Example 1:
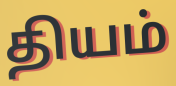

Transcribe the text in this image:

தியம்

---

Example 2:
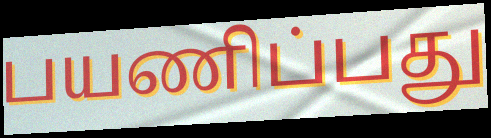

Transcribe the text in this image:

பயணிப்பது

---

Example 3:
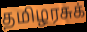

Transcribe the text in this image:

தமிழரசுக்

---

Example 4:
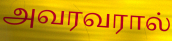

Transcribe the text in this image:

அவரவரால்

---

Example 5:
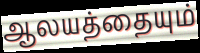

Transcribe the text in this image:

ஆலயத்தையும்